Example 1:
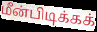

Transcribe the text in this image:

மீன்பிடிக்கக்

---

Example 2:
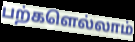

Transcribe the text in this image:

பற்களெல்லாம்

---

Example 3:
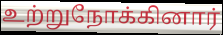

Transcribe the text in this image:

உற்றுநோக்கினார்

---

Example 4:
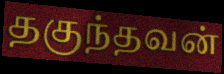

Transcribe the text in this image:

தகுந்தவன்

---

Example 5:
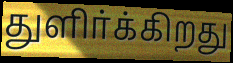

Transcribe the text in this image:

துளிர்க்கிறது